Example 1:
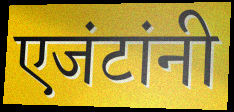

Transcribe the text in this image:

एजंटांनी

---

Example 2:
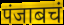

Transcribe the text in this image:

पंजाबचं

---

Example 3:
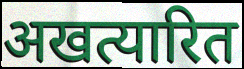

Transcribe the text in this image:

अखत्यारित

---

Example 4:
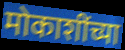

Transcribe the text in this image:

मोकाशींच्या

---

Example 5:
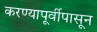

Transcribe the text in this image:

करण्यापूर्वीपासून